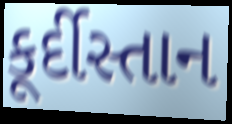
કૂર્દીસ્તાન